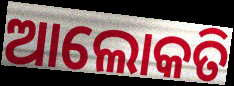
ଆଲୋକତି